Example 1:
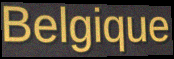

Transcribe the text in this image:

Belgique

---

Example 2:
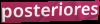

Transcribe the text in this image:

posteriores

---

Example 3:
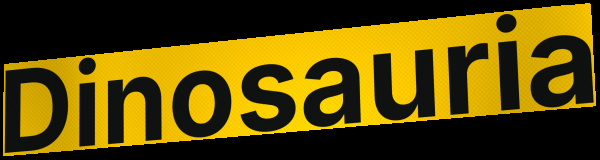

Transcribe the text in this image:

Dinosauria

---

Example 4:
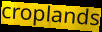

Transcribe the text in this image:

croplands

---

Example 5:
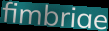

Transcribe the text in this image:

fimbriae